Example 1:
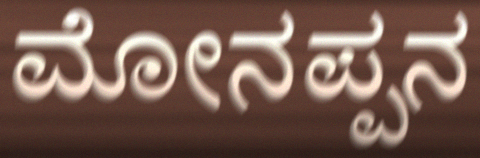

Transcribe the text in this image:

ಮೋನಪ್ಪನ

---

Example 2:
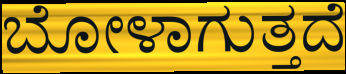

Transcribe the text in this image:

ಬೋಳಾಗುತ್ತದೆ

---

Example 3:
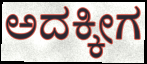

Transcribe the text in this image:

ಅದಕ್ಕೀಗ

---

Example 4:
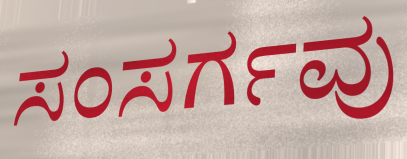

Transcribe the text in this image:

ಸಂಸರ್ಗವು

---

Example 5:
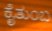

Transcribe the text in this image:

ಕೈತುಂಬ